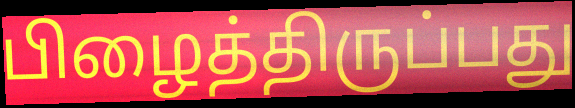
பிழைத்திருப்பது